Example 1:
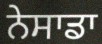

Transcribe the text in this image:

ਨੇਸਾਡਾ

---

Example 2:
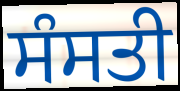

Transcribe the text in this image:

ਸੰਸਤੀ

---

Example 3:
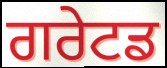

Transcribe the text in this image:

ਗਰੇਟਡ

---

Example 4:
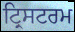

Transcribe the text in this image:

ਟ੍ਰਿਸਟਰਮ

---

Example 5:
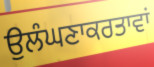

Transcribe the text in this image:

ਉਲੰਘਣਾਕਰਤਾਵਾਂ